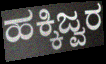
ಹಕ್ಕಿಜ್ವರ